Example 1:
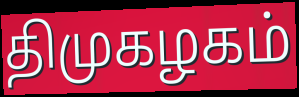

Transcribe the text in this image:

திமுகழகம்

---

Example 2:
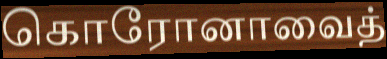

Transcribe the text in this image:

கொரோனாவைத்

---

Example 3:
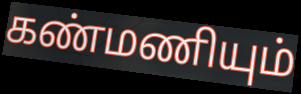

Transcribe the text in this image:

கண்மணியும்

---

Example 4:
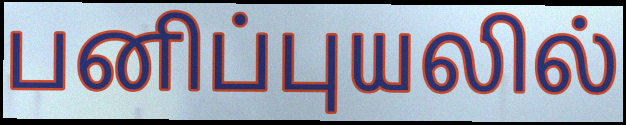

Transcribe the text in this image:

பனிப்புயலில்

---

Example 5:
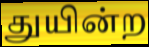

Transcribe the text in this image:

துயின்ற